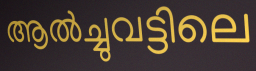
ആൽച്ചുവട്ടിലെ